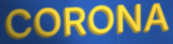
CORONA